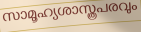
സാമൂഹ്യശാസ്ത്രപരവും